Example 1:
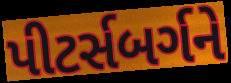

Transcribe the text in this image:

પીટર્સબર્ગને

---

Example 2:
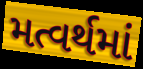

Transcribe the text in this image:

મત્વર્થમાં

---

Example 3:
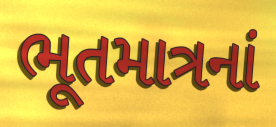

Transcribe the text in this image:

ભૂતમાત્રનાં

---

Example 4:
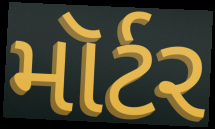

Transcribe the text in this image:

મૉર્ટર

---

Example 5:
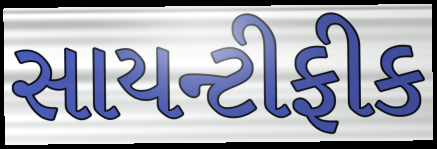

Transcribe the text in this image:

સાયન્ટીફીક